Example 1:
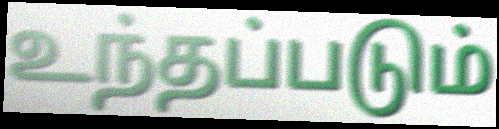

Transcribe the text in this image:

உந்தப்படும்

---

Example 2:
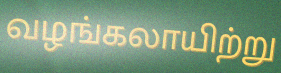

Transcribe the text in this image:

வழங்கலாயிற்று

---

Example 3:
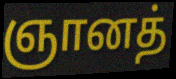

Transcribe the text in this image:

ஞானத்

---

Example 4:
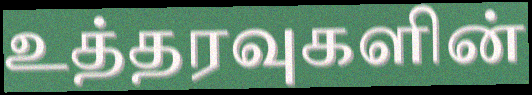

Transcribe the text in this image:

உத்தரவுகளின்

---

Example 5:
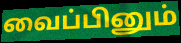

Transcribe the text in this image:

வைப்பினும்